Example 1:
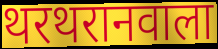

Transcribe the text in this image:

थरथरानवाला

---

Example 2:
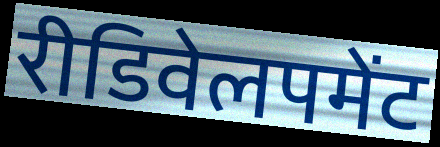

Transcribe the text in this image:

रीडिवेलपमेंट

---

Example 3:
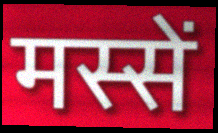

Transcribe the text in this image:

मस्सें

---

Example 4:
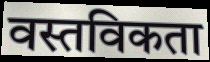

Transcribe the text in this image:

वस्तविकता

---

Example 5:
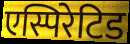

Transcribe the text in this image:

एस्पिरेटिड